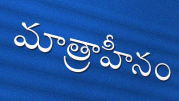
మాత్రాహీనం